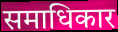
समाधिकार